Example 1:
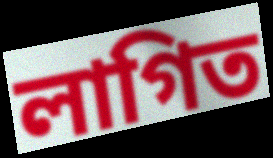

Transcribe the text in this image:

লাগিত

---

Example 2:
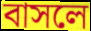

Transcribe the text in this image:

বাসলে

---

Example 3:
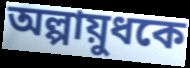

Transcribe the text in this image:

অল্পায়ুধকে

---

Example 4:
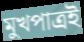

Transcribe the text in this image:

মুখপাত্রই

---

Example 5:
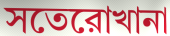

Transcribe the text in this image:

সতেরোখানা